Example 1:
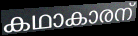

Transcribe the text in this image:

കഥാകാരന്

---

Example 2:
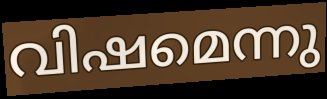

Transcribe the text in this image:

വിഷമെന്നു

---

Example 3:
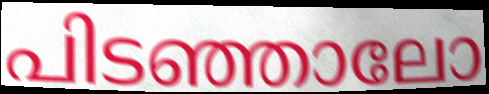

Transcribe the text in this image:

പിടഞ്ഞാലോ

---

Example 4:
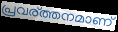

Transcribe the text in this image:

പ്രവര്ത്തനമാണ്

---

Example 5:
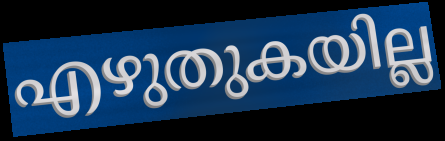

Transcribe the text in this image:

എഴുതുകയില്ല